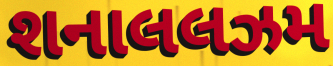
શનાલલઝમ